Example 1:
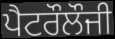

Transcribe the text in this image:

ਪੈਟਰੌਲੌਜੀ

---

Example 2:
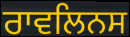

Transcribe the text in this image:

ਰਾਵਲਿਨਸ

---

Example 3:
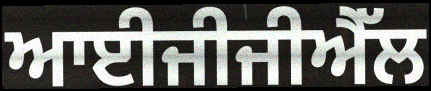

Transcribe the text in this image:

ਆਈਜੀਜੀਐੱਲ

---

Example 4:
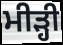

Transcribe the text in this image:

ਮੀੜ੍ਹੀ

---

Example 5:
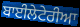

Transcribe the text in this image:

ਬਾਈਲੇਟੇਰੀਆ